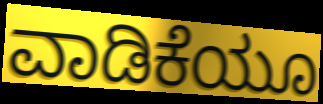
ವಾಡಿಕೆಯೂ